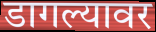
डागल्यावर